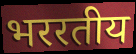
भररतीय